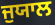
ਜੁਯਾਲ